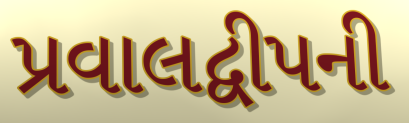
પ્રવાલદ્વીપની